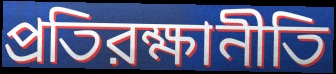
প্রতিরক্ষানীতি